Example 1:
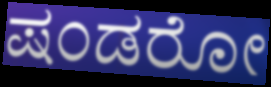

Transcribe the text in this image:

ಷಂಡರೋ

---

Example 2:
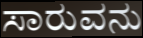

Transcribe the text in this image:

ಸಾರುವನು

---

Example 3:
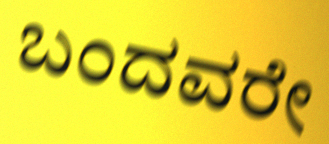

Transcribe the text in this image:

ಬಂದವರೇ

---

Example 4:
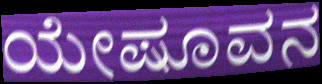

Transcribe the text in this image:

ಯೇಷೂವನ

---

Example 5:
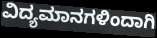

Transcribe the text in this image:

ವಿದ್ಯಮಾನಗಳಿಂದಾಗಿ